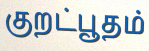
குறட்பூதம்